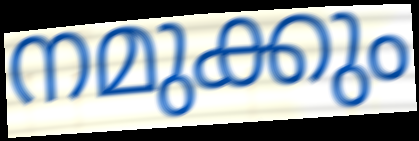
നമുക്കും